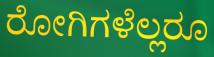
ರೋಗಿಗಳೆಲ್ಲರೂ